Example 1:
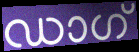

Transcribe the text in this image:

ഡാഗ്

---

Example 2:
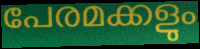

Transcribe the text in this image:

പേരമക്കളും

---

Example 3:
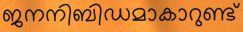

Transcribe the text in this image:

ജനനിബിഡമാകാറുണ്ട്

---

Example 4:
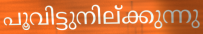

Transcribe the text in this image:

പൂവിട്ടുനില്ക്കുന്നു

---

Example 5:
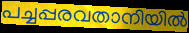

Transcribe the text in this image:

പച്ചപ്പരവതാനിയിൽ